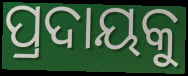
ପ୍ରଦାୟକୁ